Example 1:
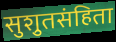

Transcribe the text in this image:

सुश्रुतसंहिता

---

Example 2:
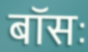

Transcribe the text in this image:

बॉसः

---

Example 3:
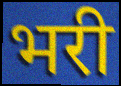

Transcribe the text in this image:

भरी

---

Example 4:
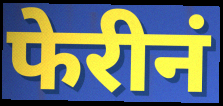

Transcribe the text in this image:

फेरीनं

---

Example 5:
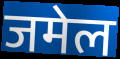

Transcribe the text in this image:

जमेल